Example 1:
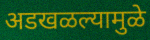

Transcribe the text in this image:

अडखळल्यामुळे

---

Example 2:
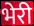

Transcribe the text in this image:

भेरी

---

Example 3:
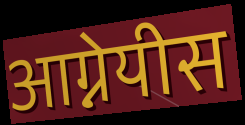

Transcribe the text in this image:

आग्नेयीस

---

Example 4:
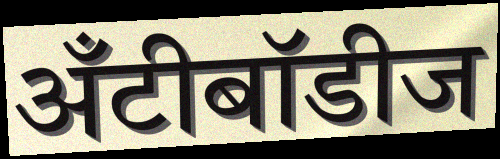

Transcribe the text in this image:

अँटीबॉडीज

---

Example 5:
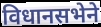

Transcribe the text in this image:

विधानसभेने